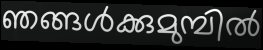
ഞങ്ങൾക്കുമുമ്പിൽ